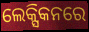
ଲେକ୍ସିକନରେ